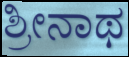
ಶ್ರೀನಾಥ